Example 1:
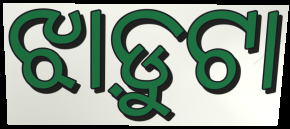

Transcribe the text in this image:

ଝାଡ଼ୁଟା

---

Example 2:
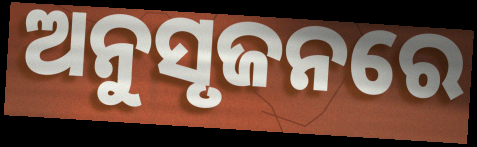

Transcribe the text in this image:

ଅନୁସୃଜନରେ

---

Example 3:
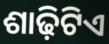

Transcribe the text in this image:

ଶାଢ଼ିଟିଏ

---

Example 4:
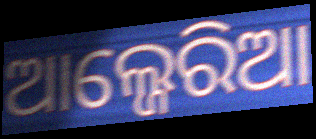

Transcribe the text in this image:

ଆଲ୍ଜେରିଆ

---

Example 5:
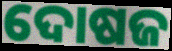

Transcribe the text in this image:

ଦୋଷଜ